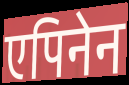
एपिनेन